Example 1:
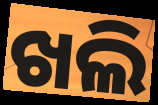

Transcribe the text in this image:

ଖଲି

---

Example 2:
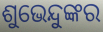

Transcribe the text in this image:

ଶୁଭେନ୍ଦୁଙ୍କର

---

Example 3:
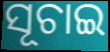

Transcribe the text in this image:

ସୂଚାଇ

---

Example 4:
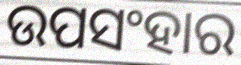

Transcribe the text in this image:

ଉପସଂହାର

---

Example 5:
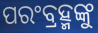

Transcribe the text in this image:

ପରଂବ୍ରହ୍ମଙ୍କୁ